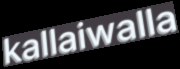
kallaiwalla